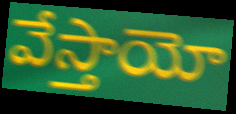
వేస్తాయో